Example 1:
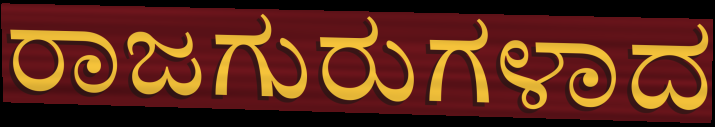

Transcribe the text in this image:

ರಾಜಗುರುಗಳಾದ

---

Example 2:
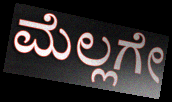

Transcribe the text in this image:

ಮೆಲ್ಲಗೇ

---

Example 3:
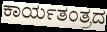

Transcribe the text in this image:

ಕಾರ್ಯತಂತ್ರದ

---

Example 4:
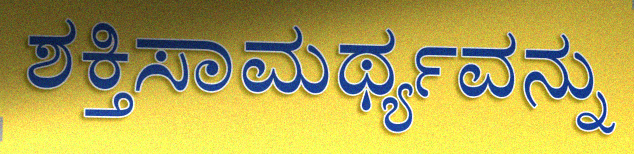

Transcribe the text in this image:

ಶಕ್ತಿಸಾಮರ್ಥ್ಯವನ್ನು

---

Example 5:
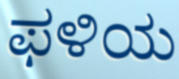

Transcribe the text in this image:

ಫಳಿಯ